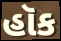
હૉક